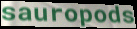
sauropods